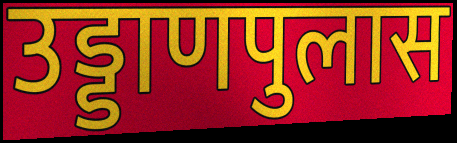
उड्डाणपुलास